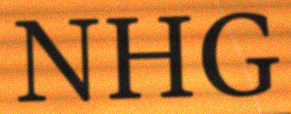
NHG